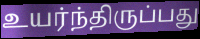
உயர்ந்திருப்பது